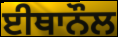
ਈਥਾਨੌਲ